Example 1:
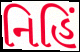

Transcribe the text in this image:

નિહિં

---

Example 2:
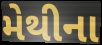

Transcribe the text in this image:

મેથીના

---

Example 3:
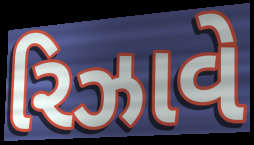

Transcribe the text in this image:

રિઝાવે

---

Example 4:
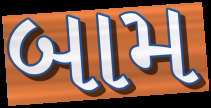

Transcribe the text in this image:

બામ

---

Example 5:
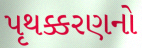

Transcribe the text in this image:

પૃથક્કરણનો